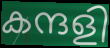
കന്ദളി